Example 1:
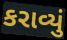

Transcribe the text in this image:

કરાવ્યું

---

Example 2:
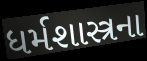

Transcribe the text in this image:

ધર્મશાસ્ત્રના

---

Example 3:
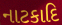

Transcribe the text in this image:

નાટકાદિ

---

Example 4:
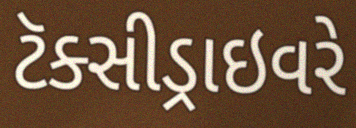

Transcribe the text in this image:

ટૅક્સીડ્રાઇવરે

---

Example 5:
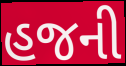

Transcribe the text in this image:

હજની